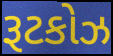
રૂટકોઝ